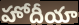
హోదీయా